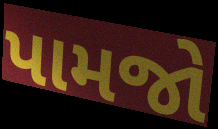
પામજો